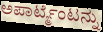
ಅಪಾರ್ಟ್ಮೆಂಟನ್ನು